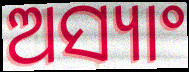
ଅସ୍ୟାଂ